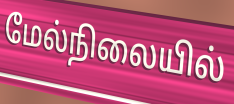
மேல்நிலையில்